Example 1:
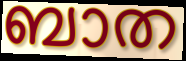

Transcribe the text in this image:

ബാത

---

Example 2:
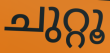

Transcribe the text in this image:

ചുറ്റൂ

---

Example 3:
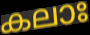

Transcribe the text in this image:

കലാഃ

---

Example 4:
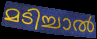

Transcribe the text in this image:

മടിച്ചാൽ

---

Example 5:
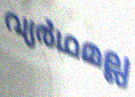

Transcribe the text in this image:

വ്യർഥമല്ല